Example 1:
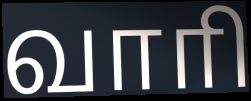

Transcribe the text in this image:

வாரி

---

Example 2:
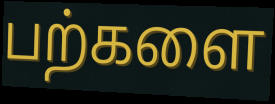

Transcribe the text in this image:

பற்களை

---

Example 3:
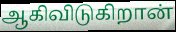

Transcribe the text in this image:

ஆகிவிடுகிறான்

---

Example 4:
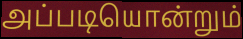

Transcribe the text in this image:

அப்படியொன்றும்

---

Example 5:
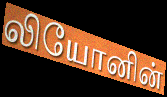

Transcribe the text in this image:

லியோனின்